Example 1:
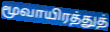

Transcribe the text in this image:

மூவாயிரத்துத்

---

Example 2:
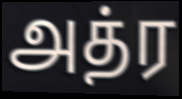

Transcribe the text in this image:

அத்ர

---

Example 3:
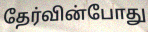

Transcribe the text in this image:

தேர்வின்போது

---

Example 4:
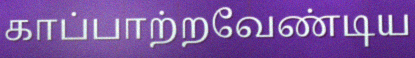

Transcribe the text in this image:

காப்பாற்றவேண்டிய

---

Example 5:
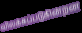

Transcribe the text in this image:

விலக்கப்படுகின்றன